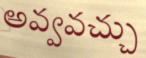
అవ్వవచ్చు